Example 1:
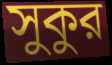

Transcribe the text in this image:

সুকুর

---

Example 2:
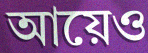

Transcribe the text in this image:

আয়েও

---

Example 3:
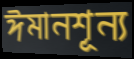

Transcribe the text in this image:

ঈমানশূন্য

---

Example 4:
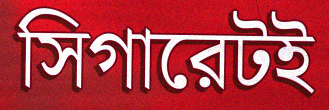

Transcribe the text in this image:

সিগারেটই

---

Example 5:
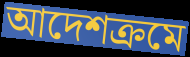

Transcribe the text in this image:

আদেশক্রমে